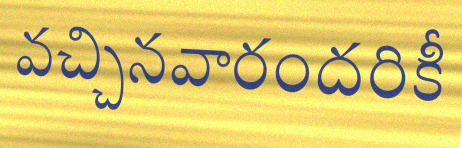
వచ్చినవారందరికీ